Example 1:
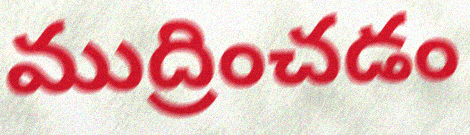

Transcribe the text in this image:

ముద్రించడం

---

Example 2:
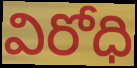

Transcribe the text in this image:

విరోధి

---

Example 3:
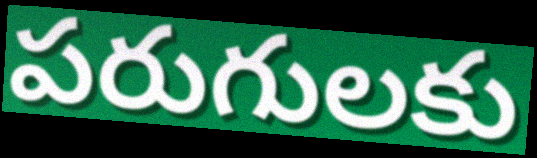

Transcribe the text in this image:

పరుగులకు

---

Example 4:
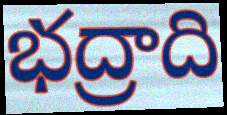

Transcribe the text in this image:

భద్రాది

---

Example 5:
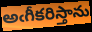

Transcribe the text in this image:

అఁగీకరిస్తాను